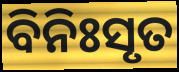
ବିନିଃସୃତ